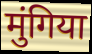
मुंगिया